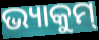
ଭ୍ୟାକୁମ୍